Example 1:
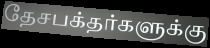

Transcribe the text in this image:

தேசபக்தர்களுக்கு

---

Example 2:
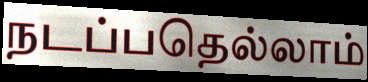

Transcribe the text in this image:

நடப்பதெல்லாம்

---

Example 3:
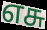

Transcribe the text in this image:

எசு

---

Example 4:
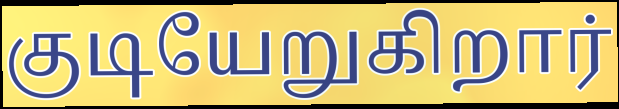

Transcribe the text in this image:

குடியேறுகிறார்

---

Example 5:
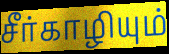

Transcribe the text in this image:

சீர்காழியும்